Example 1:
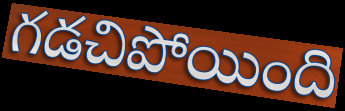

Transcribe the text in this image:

గడచిపోయింది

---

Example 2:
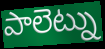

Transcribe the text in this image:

పాలెట్ను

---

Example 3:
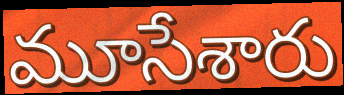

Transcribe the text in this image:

మూసేశారు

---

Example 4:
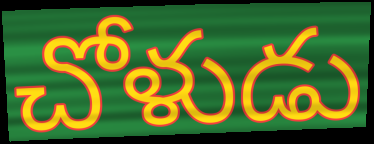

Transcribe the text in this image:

చోళుడు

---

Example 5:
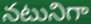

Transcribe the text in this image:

నటునిగా